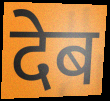
देब